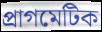
প্ৰাগমেটিক